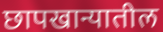
छापखान्यातील